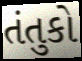
તંતુકો